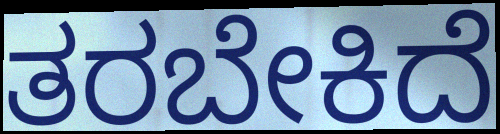
ತರಬೇಕಿದೆ